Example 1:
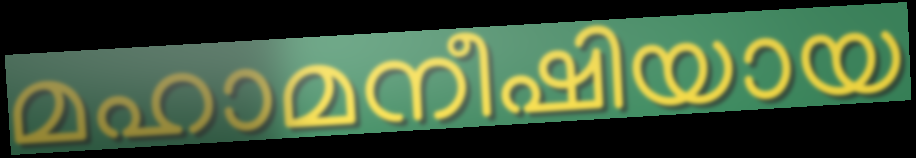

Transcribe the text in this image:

മഹാമനീഷിയായ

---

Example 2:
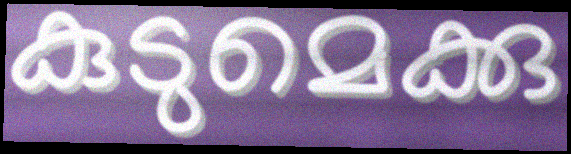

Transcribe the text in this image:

കുടുമെക്കു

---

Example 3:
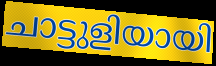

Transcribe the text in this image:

ചാട്ടുളിയായി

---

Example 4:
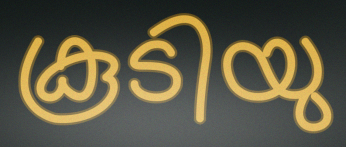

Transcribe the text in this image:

കൂടിയു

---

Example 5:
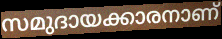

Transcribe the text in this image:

സമുദായക്കാരനാണ്